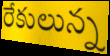
రేకులున్న